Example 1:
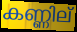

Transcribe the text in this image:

കണ്ണില്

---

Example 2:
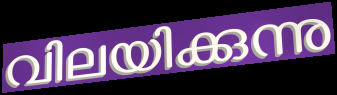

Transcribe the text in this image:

വിലയിക്കുന്നു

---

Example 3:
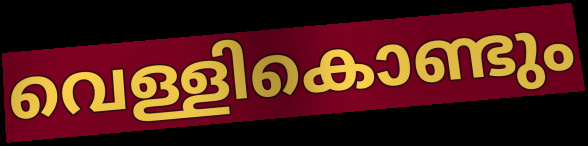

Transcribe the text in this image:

വെള്ളികൊണ്ടും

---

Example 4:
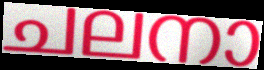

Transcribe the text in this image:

ചലനാ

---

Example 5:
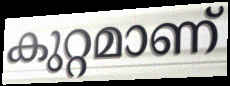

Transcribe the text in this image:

കുറ്റമാണ്